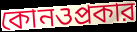
কোনওপ্রকার